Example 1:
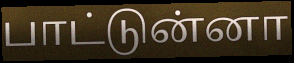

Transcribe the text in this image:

பாட்டுன்னா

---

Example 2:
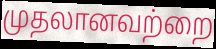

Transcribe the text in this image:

முதலானவற்றை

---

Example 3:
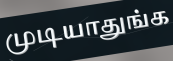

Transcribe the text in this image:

முடியாதுங்க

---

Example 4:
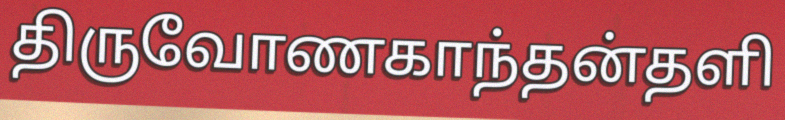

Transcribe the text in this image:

திருவோணகாந்தன்தளி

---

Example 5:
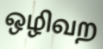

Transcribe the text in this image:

ஒழிவற